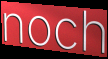
noch